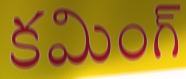
కమింగ్